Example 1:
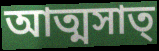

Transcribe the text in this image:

আত্মসাত্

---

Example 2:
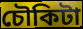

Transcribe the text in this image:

চৌকিটা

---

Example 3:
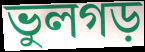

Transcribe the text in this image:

ভুলগড়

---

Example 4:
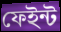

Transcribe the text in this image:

ফেইন্ট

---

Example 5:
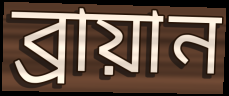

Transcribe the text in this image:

ব্রায়ান